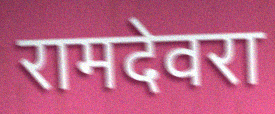
रामदेवरा